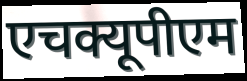
एचक्यूपीएम